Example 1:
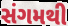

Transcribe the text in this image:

સંગમથી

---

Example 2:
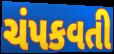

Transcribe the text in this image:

ચંપકવતી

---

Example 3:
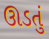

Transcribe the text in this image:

ઊડતું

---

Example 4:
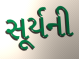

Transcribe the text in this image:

સૂર્યની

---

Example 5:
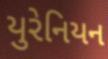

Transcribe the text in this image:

યુરેનિયન